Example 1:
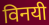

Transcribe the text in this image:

विनयी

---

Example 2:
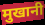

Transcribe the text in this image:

मुखानी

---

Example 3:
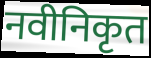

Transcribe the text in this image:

नवीनिकृत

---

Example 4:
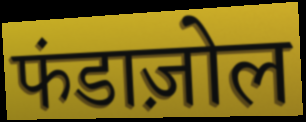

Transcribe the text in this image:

फंडाज़ोल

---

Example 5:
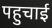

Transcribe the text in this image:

पहुचाई